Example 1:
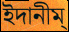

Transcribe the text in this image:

ইদানীম্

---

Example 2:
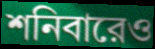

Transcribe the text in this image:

শনিবারেও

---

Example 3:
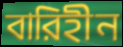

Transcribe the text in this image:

বারিহীন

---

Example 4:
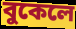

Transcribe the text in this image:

বুকেলে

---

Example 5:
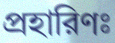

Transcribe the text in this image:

প্রহারিণঃ